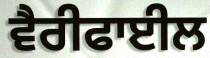
ਵੈਰੀਫਾਈਲ